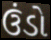
ઉંડો